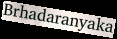
Brhadaranyaka